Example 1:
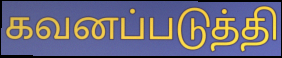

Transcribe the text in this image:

கவனப்படுத்தி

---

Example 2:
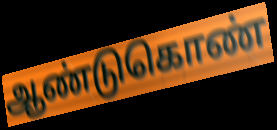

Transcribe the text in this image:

ஆண்டுகொண்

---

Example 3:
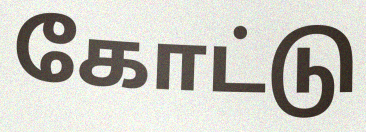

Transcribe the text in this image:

கோட்டு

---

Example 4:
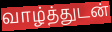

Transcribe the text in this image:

வாழ்த்துடன்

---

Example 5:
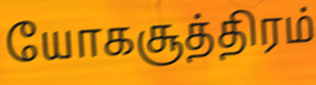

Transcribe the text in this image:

யோகசூத்திரம்